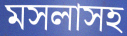
মসলাসহ